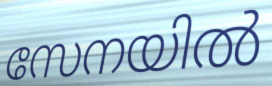
സേനയിൽ